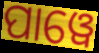
ପାୱେ